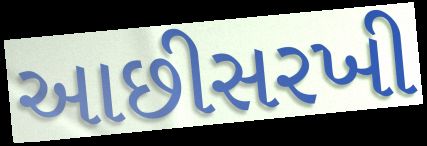
આછીસરખી